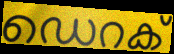
ഡെറക്